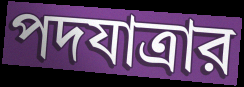
পদযাত্রার